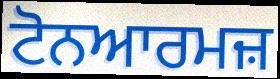
ਟੋਨਆਰਮਜ਼